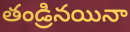
తండ్రినయినా